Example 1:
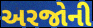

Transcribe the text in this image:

અરજોની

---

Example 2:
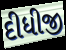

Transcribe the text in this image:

દીધીજી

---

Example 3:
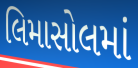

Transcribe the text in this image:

લિમાસોલમાં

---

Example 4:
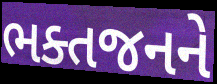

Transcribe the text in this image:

ભક્તજનને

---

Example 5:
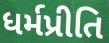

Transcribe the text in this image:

ધર્મપ્રીતિ